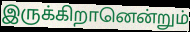
இருக்கிறானென்றும்